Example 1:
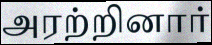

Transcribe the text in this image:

அரற்றினார்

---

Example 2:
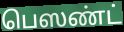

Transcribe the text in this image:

பெஸண்ட்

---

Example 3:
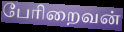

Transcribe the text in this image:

பேரிறைவன்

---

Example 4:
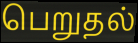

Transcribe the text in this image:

பெறுதல்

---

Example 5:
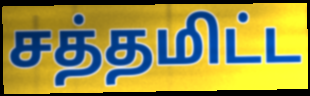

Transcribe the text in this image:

சத்தமிட்ட